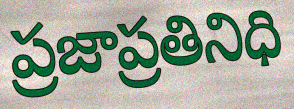
ప్రజాప్రతినిధి